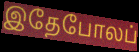
இதேபோலப்